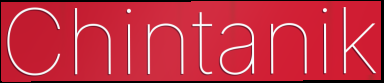
Chintanik